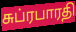
சுப்ரபாரதி